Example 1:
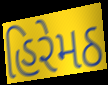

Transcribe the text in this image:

હિરેમઠ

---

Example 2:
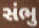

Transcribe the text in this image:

સંભુ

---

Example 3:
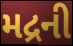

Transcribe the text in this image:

મદ્રની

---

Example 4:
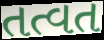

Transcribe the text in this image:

તત્વત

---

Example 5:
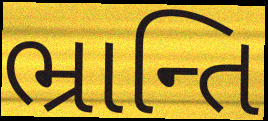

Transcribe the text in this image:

ભ્રાન્તિ